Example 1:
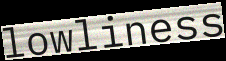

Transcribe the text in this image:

lowliness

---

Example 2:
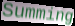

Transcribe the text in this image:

Summing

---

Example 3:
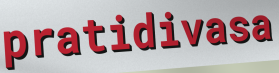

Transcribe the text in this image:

pratidivasa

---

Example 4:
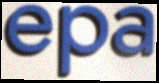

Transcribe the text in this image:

epa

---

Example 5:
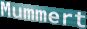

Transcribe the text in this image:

Mummert